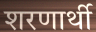
शरणार्थी